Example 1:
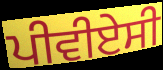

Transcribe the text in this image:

ਪੀਵੀਏਸੀ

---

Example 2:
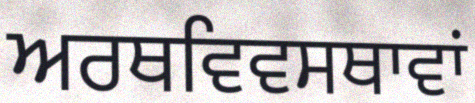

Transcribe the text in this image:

ਅਰਥਵਿਵਸਥਾਵਾਂ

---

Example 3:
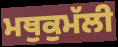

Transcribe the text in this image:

ਮਥੁਕੁਮੱਲੀ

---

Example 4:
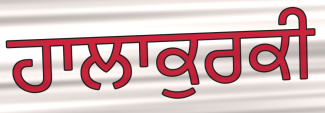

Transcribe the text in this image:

ਹਾਲਾਕੁਰਕੀ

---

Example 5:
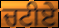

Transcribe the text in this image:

ਚਟੀਏ